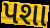
પશા